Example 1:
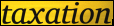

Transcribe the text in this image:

taxation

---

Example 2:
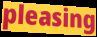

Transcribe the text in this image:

pleasing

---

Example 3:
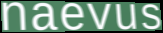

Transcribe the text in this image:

naevus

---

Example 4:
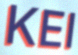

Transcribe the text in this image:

KEI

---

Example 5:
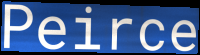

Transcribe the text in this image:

Peirce